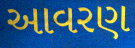
આવરણ